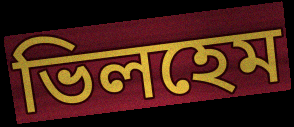
ভিলহেম